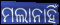
ମଲାନାହିଁ